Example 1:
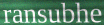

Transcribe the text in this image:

ransubhe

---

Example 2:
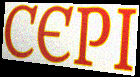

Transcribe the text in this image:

CEPI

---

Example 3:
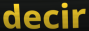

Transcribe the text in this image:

decir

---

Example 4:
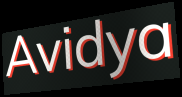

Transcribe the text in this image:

Avidya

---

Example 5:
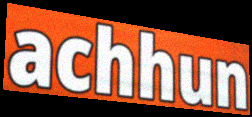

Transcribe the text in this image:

achhun